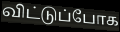
விட்டுப்போக